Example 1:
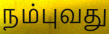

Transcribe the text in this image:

நம்புவது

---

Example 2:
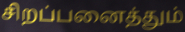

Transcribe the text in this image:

சிறப்பனைத்தும்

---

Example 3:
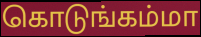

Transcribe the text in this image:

கொடுங்கம்மா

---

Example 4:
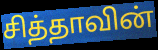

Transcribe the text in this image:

சித்தாவின்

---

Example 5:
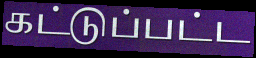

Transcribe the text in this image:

கட்டுப்பட்ட